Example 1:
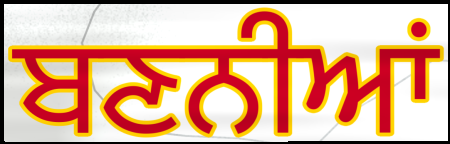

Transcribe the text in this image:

ਬਣਨੀਆਂ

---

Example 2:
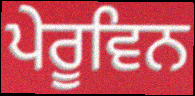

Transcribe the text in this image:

ਪੇਰੂਵਿਨ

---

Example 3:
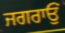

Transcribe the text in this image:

ਜਗਰਾਓੁਂ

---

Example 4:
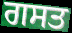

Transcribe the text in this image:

ਗਸਤ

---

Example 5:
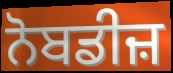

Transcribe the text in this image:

ਨੋਬਡੀਜ਼